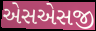
એસએસજી